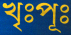
খৃঃপূঃ